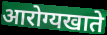
आरोग्यखाते